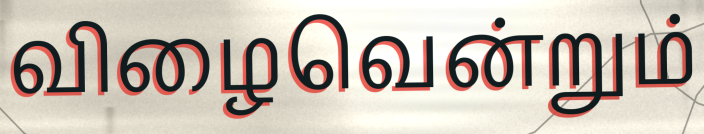
விழைவென்றும்